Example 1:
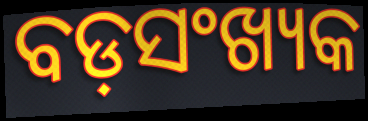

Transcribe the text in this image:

ବଡ଼ସଂଖ୍ୟକ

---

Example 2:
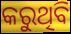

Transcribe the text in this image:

କରୁଥିବି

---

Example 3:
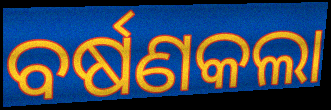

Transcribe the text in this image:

ବର୍ଷଣକଲା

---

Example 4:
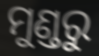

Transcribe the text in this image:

ମୁଣ୍ଡରୁ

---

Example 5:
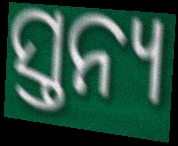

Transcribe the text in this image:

ସ୍ତନ୍ୟ